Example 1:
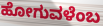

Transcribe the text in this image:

ಹೋಗುವಳೆಂಬ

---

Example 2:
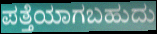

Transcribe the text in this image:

ಪತ್ತೆಯಾಗಬಹುದು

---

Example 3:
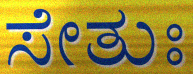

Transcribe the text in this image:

ಸೇತುಃ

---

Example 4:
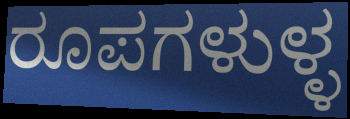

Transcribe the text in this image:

ರೂಪಗಳುಳ್ಳ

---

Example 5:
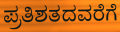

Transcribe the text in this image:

ಪ್ರತಿಶತದವರೆಗೆ